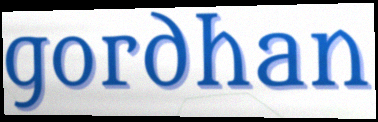
gordhan